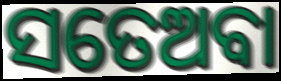
ସତେଅବା